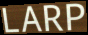
LARP